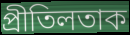
প্ৰীতিলতাক